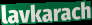
lavkarach